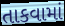
તાકવામાં